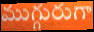
ముగ్గురుగా